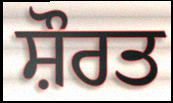
ਸ਼ੌਰਤ